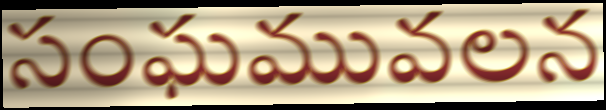
సంఘమువలన